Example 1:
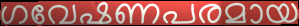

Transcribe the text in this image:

ഗവേഷണപരമായ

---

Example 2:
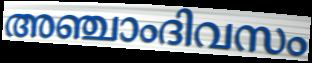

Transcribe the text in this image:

അഞ്ചാംദിവസം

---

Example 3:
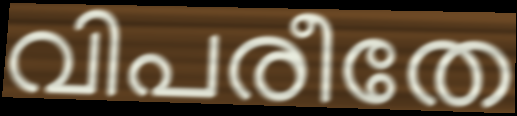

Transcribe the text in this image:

വിപരീതേ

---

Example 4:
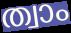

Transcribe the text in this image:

ത്വാം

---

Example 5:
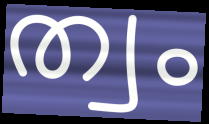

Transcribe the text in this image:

ത്വം